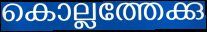
കൊല്ലത്തേക്കു